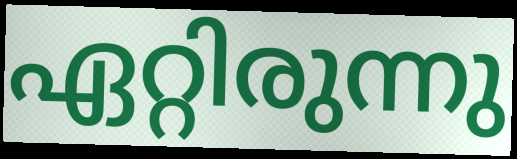
ഏറ്റിരുന്നു